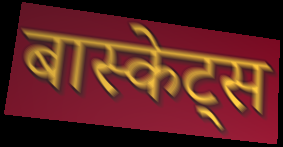
बास्केट्स